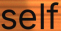
self